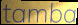
tamba